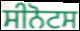
ਸੀਨੋਟਸ